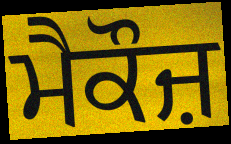
ਮੈਕੌਜ਼